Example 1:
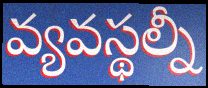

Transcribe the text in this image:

వ్యవస్థల్నీ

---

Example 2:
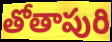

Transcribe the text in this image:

తోతాపురి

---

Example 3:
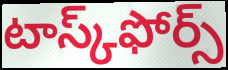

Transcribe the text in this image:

టాస్క్‌ఫోర్స్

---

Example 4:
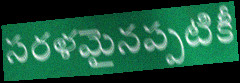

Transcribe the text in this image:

సరళమైనప్పటికీ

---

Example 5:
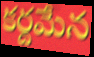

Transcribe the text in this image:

కర్దమేన